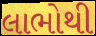
લાભોથી